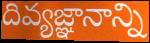
దివ్యజ్ఞానాన్ని